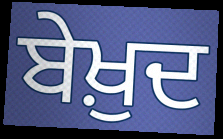
ਬੇਖ਼ੁਦ